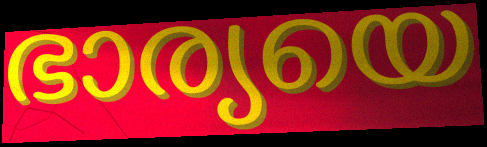
ഭാര്യയെ